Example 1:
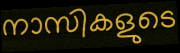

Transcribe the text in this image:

നാസികളുടെ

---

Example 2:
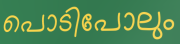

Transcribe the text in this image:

പൊടിപോലും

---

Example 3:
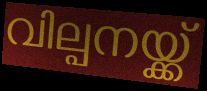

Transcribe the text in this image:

വില്പനയ്ക്ക്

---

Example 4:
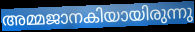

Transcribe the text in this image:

അമ്മജാനകിയായിരുന്നു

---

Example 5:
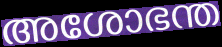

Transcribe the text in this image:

അശോഭന്ത